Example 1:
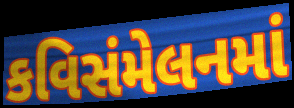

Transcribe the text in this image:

કવિસંમેલનમાં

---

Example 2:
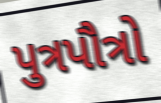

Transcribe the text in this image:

પુત્રપૌત્રો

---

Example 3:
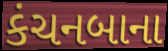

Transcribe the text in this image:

કંચનબાના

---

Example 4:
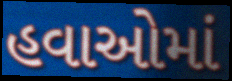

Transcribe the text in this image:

હવાઓમાં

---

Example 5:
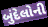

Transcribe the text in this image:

બુંદેલોની